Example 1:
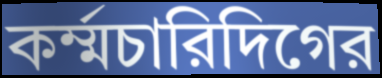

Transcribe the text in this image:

কর্ম্মচারিদিগের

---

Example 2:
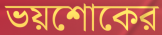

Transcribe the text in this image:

ভয়শোকের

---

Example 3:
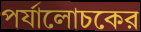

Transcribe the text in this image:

পর্যালোচকের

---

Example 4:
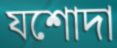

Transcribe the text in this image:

যশোদা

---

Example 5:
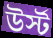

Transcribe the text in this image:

উর্স্ট